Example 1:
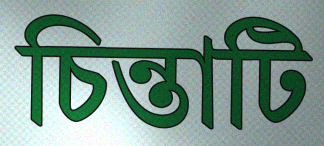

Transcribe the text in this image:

চিন্তাটি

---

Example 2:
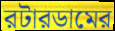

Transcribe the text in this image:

রটারডামের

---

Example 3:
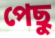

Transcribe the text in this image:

পেছু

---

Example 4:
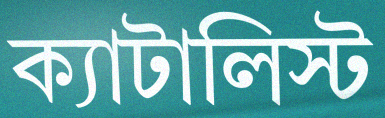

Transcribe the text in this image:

ক্যাটালিস্ট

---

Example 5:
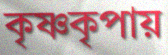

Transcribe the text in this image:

কৃষ্ণকৃপায়